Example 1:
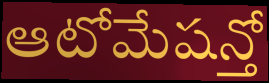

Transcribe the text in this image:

ఆటోమేషన్తో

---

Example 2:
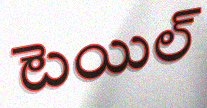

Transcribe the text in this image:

టెయిల్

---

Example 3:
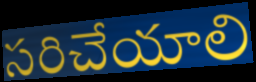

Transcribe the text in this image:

సరిచేయాలి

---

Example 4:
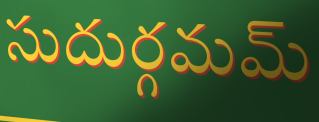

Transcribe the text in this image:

సుదుర్గమమ్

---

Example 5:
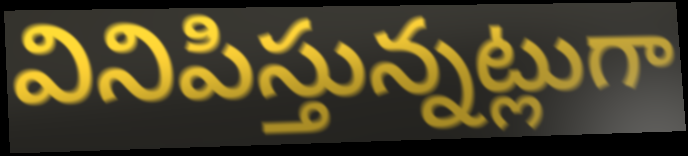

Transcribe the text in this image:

వినిపిస్తున్నట్లుగా